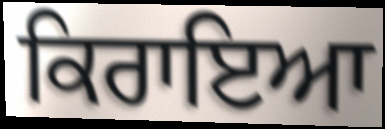
ਕਿਰਾਇਆ